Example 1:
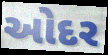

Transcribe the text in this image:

ઓદર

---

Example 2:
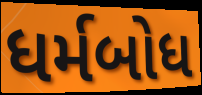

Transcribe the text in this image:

ધર્મબોધ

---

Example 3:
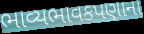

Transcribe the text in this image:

ભાવ્યભાવકપણાના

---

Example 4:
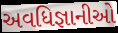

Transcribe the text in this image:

અવધિજ્ઞાનીઓ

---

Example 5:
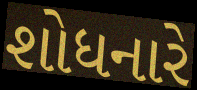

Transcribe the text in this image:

શોધનારે